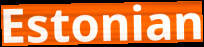
Estonian